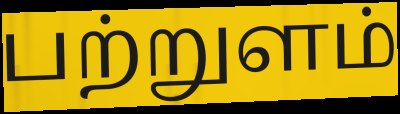
பற்றுளம்